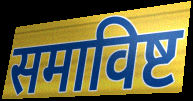
समाविष्ट